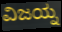
ವಿಜಯ್ನ